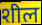
शील